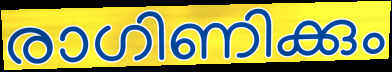
രാഗിണിക്കും